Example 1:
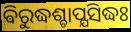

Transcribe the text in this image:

ଵିରୁଦ୍ଧଶ୍ଚାପ୍ଯସିଦ୍ଧଃ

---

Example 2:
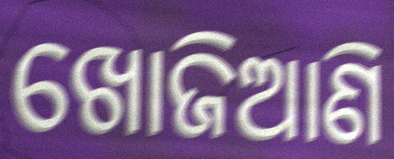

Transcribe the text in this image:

ଖୋଜିଆଣି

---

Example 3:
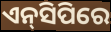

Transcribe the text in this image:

ଏନ୍‌ସିପିରେ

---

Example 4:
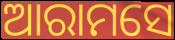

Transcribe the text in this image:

ଆରାମସେ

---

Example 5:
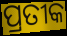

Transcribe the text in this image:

ପ୍ରତୀକ